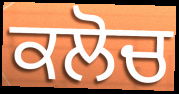
ਕਲੋਚ